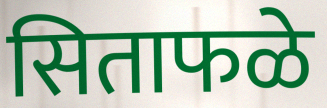
सिताफळे